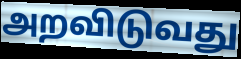
அறவிடுவது